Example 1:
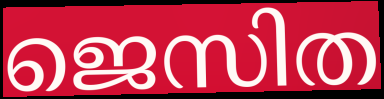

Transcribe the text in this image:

ജെസിത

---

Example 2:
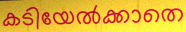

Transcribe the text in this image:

കടിയേൽക്കാതെ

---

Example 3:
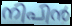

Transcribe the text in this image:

നിപിൻ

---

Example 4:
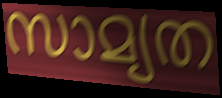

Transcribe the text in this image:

സാമ്യത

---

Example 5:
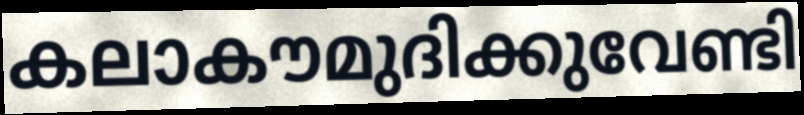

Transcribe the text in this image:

കലാകൗമുദിക്കുവേണ്ടി